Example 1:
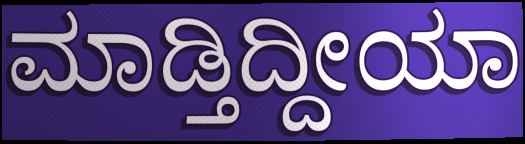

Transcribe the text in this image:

ಮಾಡ್ತಿದ್ದೀಯಾ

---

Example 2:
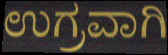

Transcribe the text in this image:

ಉಗ್ರವಾಗಿ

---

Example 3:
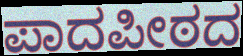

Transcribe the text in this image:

ಪಾದಪೀಠದ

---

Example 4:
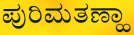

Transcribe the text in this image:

ಪುರಿಮತಣ್ಹಾ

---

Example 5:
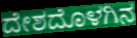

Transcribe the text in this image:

ದೇಶದೊಳಗಿನ